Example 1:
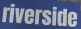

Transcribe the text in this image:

riverside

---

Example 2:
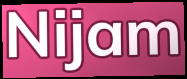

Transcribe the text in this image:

Nijam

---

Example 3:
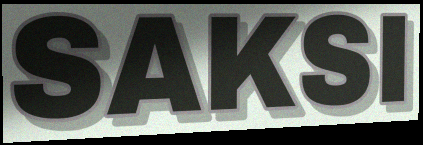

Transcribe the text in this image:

SAKSI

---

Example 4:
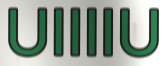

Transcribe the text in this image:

UIIIIU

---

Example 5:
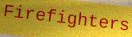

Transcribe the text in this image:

Firefighters